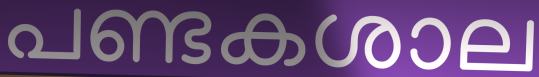
പണ്ടകശാല